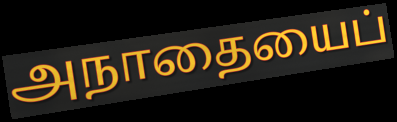
அநாதையைப்